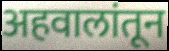
अहवालांतून